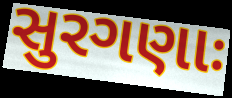
સુરગણાઃ